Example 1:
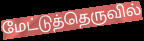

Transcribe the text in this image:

மேட்டுத்தெருவில்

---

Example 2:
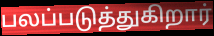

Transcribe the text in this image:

பலப்படுத்துகிறார்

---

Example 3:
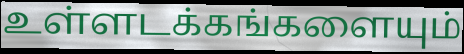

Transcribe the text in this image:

உள்ளடக்கங்களையும்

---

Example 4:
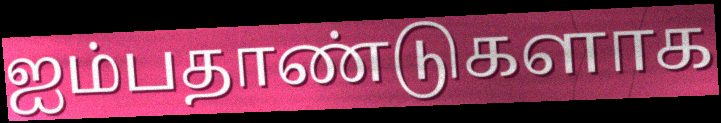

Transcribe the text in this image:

ஐம்பதாண்டுகளாக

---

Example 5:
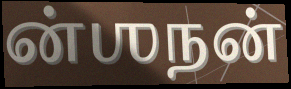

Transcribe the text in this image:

ன்ஶநன்